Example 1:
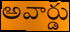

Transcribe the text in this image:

అవార్డు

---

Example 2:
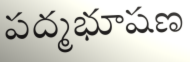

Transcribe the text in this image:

పద్మభూషణ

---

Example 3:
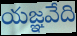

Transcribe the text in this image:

యజ్ఞవేది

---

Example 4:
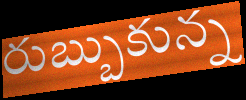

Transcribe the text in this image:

రుబ్బుకున్న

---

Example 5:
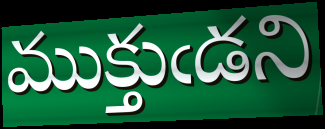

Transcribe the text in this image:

ముక్తుఁడని